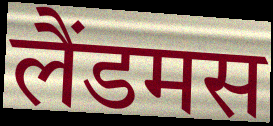
लैंडमस